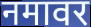
नमावर